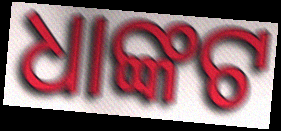
ଧାଙ୍କଟ